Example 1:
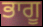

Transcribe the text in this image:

ਭਾਗੂ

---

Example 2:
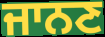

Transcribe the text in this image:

ਜਾਨਣ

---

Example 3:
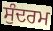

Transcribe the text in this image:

ਸੁੰਦਰਮ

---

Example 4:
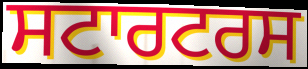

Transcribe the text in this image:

ਸਟਾਰਟਰਸ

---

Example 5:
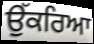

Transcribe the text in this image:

ਉੱਕਰਿਆ